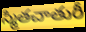
స్మితచాతురీ